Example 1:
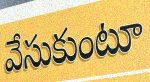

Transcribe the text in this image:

వేసుకుంటూ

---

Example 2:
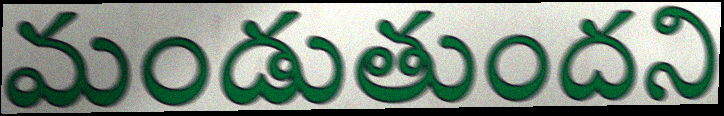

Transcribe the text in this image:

మండుతుందని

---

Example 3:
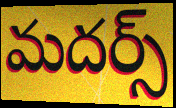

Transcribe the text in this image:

మదర్స్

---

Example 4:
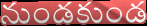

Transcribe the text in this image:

నుండకుండ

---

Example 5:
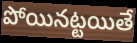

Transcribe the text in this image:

పోయినట్టయితే